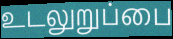
உடலுறுப்பை